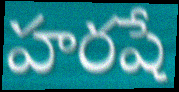
హరషే